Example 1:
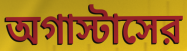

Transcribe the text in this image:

অগাস্টাসের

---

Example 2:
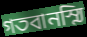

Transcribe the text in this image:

গতবানস্মি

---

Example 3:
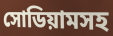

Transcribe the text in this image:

সোডিয়ামসহ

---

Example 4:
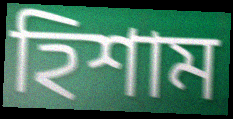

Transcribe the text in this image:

হিশাম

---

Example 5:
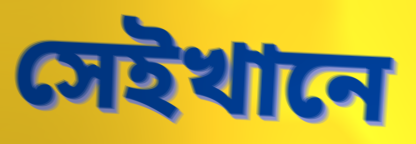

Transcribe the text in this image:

সেইখানে